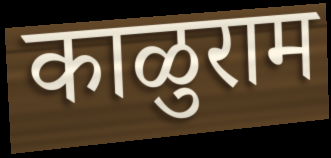
काळुराम